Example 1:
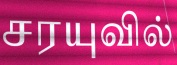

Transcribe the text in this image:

சரயுவில்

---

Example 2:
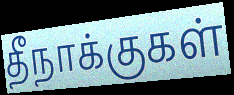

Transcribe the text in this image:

தீநாக்குகள்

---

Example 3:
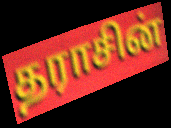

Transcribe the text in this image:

தராசின்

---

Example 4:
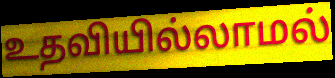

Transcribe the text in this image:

உதவியில்லாமல்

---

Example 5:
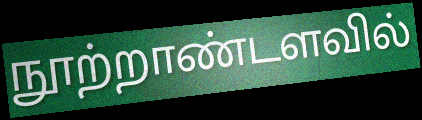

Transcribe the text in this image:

நூற்றாண்டளவில்